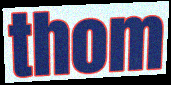
thom